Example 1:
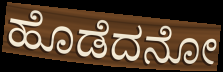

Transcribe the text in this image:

ಹೊಡೆದನೋ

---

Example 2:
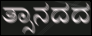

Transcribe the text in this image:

ತ್ಸಾನದದ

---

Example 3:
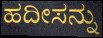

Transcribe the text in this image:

ಹದೀಸನ್ನು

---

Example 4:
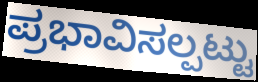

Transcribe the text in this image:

ಪ್ರಭಾವಿಸಲ್ಪಟ್ಟು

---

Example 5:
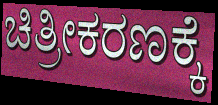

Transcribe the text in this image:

ಚಿತ್ರೀಕರಣಕ್ಕೆ